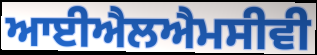
ਆਈਐਲਐਮਸੀਵੀ